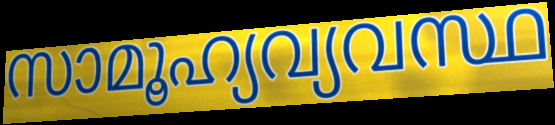
സാമൂഹ്യവ്യവസ്ഥ